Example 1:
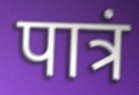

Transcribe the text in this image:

पात्रं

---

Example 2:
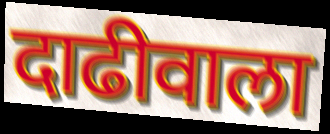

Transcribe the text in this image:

दाढीवाला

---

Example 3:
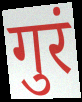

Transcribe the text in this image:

गुरं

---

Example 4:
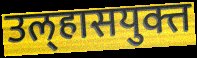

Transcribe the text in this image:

उल्हासयुक्त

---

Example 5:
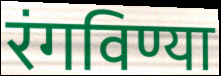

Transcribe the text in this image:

रंगविण्या